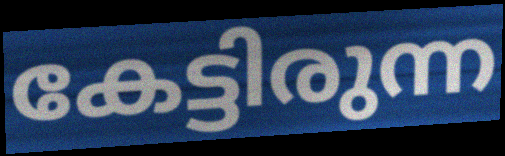
കേട്ടിരുന്ന